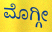
ಮೊಗ್ಗೀ